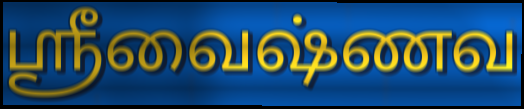
ஸ்ரீவைஷ்ணவ